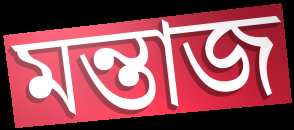
মন্তাজ